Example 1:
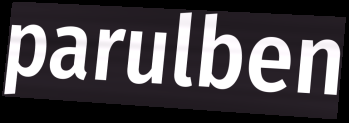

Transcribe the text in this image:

parulben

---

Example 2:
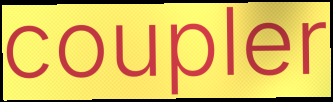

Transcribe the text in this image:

coupler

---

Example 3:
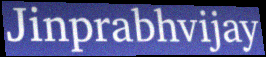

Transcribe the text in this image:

Jinprabhvijay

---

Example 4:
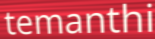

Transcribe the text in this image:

temanthi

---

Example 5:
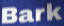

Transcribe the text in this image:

Bark